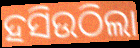
ହସିଉଠିଲା